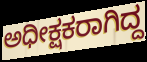
ಅಧೀಕ್ಷಕರಾಗಿದ್ದ